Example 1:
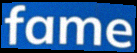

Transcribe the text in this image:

fame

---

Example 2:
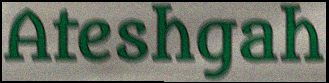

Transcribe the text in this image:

Ateshgah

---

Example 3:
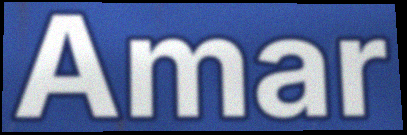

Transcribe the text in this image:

Amar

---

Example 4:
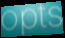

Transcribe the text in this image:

opts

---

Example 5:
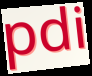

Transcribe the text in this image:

pdi